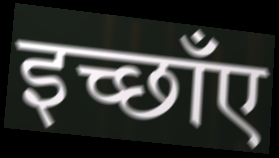
इच्छाँए